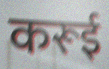
करूई